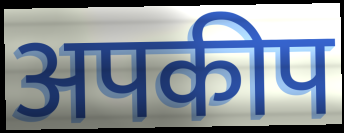
अपकीप